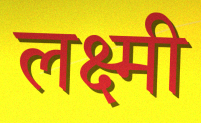
लक्ष्मी